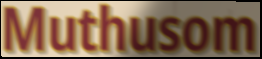
Muthusom